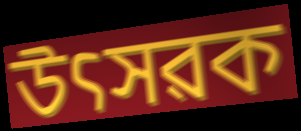
উৎসৱক